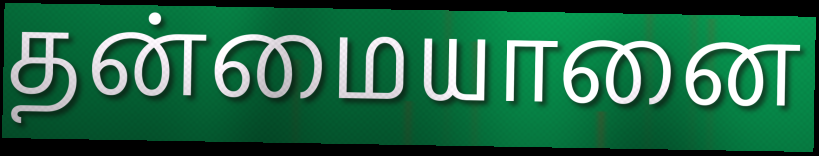
தன்மையானை